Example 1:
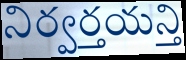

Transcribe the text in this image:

నిర్వర్తయన్తి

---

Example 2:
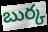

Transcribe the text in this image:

బుర్క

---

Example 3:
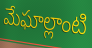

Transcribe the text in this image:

మేఘాల్లాంటి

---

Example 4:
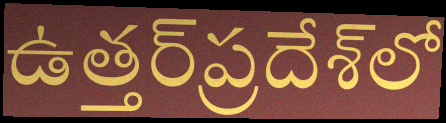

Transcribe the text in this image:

ఉత్తర్‌ప్రదేశ్‌లో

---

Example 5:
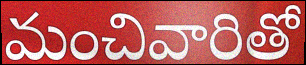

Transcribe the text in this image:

మంచివారితో